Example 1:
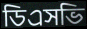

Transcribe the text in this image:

ডিএসভি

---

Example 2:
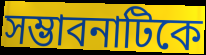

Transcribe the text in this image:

সম্ভাবনাটিকে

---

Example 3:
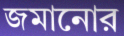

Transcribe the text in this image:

জমানোর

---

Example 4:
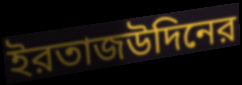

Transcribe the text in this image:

ইরতাজউদিনের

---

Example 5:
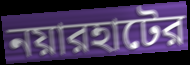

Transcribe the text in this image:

নয়ারহাটের